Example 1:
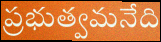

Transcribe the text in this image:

ప్రభుత్వమనేది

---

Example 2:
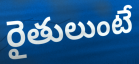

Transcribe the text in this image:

రైతులుంటే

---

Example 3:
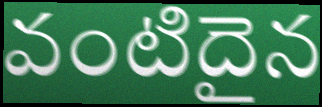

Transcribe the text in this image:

వంటిదైన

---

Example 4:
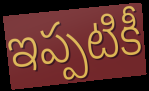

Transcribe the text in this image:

ఇప్పటికీ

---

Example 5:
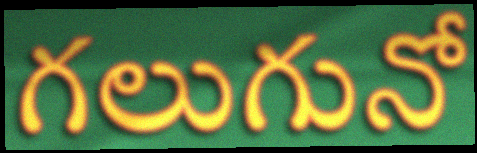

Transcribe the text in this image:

గలుగునో